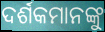
ଦର୍ଶକମାନଙ୍କୁ